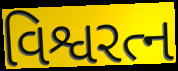
વિશ્વરત્ન